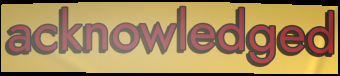
acknowledged